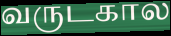
வருடகால